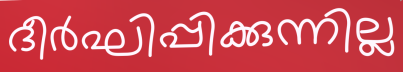
ദീർഘിപ്പിക്കുന്നില്ല